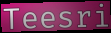
Teesri